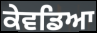
ਕੇਵਡਿਆ